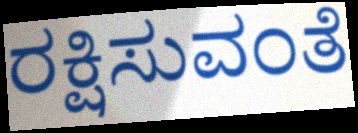
ರಕ್ಷಿಸುವಂತೆ